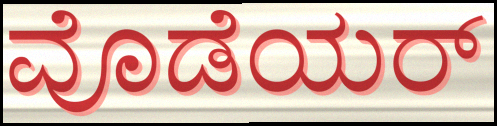
ವೊಡೆಯರ್